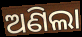
ଅଣିଲା